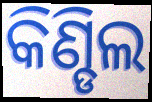
କିଣ୍ଡିଲ